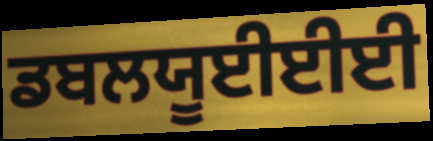
ਡਬਲਯੂਈਈਈ